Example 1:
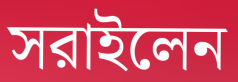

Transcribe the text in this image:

সরাইলেন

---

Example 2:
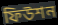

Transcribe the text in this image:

ফিউশন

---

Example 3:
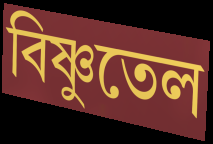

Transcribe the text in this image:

বিষ্ণুতেল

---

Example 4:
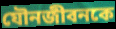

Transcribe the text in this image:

যৌনজীবনকে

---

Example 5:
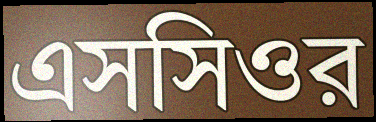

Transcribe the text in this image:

এসসিওর